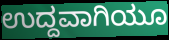
ಉದ್ದವಾಗಿಯೂ